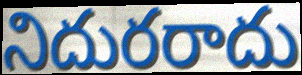
నిదురరాదు